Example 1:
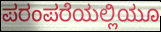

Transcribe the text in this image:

ಪರಂಪರೆಯಲ್ಲಿಯೂ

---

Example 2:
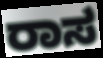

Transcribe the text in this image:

ರಾಸ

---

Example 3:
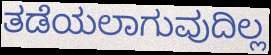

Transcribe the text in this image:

ತಡೆಯಲಾಗುವುದಿಲ್ಲ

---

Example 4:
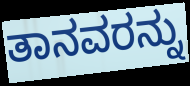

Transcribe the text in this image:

ತಾನವರನ್ನು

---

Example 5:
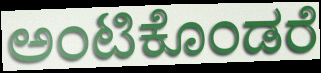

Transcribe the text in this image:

ಅಂಟಿಕೊಂಡರೆ